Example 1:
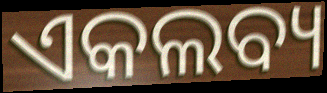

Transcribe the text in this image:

ଏକଲବ୍ୟ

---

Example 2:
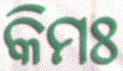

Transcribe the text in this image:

କିମଃ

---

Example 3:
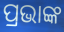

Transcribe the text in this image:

ପ୍ରଭାଙ୍କ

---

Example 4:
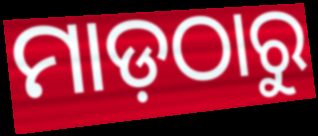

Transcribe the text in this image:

ମାଡ଼ଠାରୁ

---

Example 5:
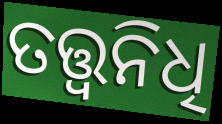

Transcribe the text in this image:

ତତ୍ତ୍ଵନିଧି